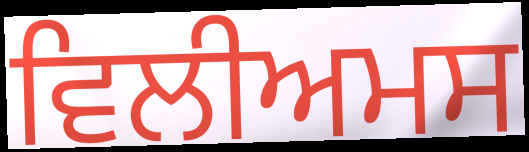
ਵਿਲੀਅਮਸ